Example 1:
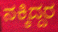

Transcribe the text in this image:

ನಕ್ಕಿದ್ದರ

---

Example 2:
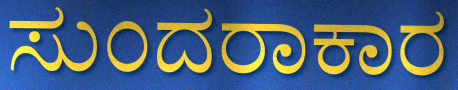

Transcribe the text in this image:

ಸುಂದರಾಕಾರ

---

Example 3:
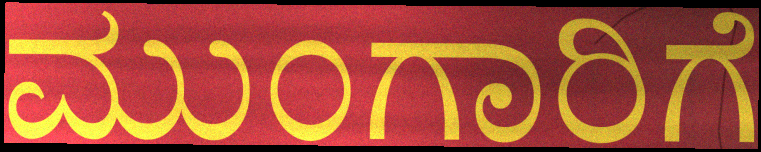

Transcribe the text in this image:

ಮುಂಗಾರಿಗೆ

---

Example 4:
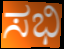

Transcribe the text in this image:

ಸಭಿ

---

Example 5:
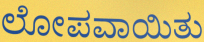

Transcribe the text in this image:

ಲೋಪವಾಯಿತು